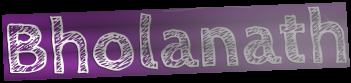
Bholanath